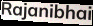
Rajanibhai